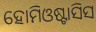
ହୋମିଓଷ୍ଟାସିସ